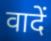
वादें